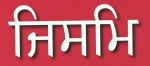
ਜਿਸਮਿ